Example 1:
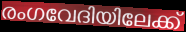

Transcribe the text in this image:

രംഗവേദിയിലേക്ക്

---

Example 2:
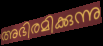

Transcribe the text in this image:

അഭിരമിക്കുന്നു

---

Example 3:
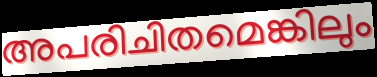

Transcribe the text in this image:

അപരിചിതമെങ്കിലും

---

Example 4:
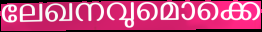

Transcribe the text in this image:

ലേഖനവുമൊക്കെ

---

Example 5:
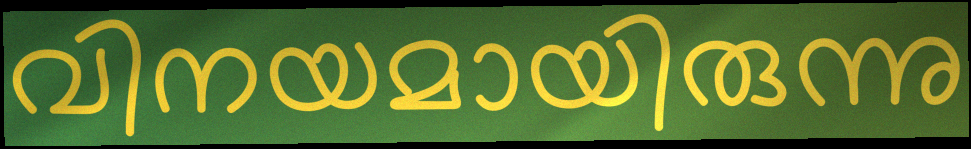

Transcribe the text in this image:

വിനയമായിരുന്നു